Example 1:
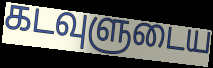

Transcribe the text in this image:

கடவுளுடைய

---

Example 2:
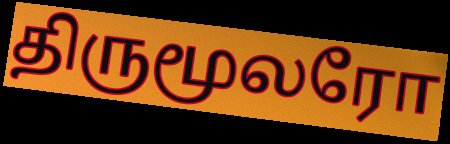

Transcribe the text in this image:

திருமூலரோ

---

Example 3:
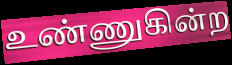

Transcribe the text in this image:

உண்ணுகின்ற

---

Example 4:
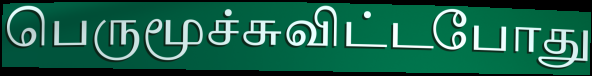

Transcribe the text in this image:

பெருமூச்சுவிட்டபோது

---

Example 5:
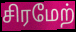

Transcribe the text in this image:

சிரமேற்